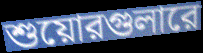
শুয়োরগুলারে